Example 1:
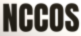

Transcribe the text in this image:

NCCOS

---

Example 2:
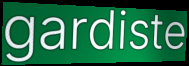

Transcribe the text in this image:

gardiste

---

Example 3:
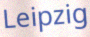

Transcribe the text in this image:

Leipzig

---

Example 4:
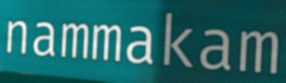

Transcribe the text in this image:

nammakam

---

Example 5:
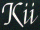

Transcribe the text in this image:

Kii